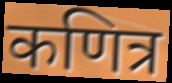
कणित्र